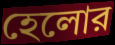
হেলোর